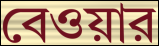
বেওয়ার